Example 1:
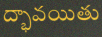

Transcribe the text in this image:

ద్భావయితు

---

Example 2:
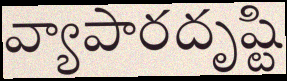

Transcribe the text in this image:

వ్యాపారదృష్టి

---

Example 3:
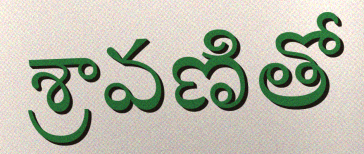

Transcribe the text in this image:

శ్రావణితో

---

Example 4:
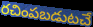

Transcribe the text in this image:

రచింపబడుటచే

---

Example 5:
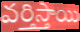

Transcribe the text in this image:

వర్తిస్తాయి